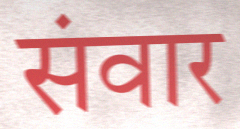
संवार